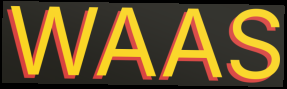
WAAS